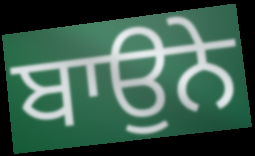
ਬਾਉਨੇ